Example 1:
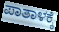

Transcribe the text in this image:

ಪಾತಾಳಕ್ಕೆ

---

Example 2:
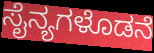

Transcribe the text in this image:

ಸೈನ್ಯಗಳೊಡನೆ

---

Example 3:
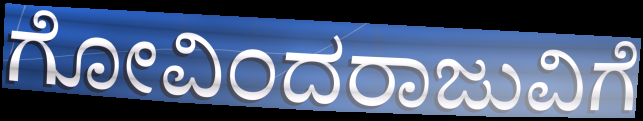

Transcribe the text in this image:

ಗೋವಿಂದರಾಜುವಿಗೆ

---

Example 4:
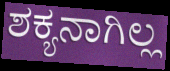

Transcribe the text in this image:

ಶಕ್ಯನಾಗಿಲ್ಲ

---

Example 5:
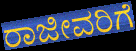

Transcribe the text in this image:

ರಾಜೀವರಿಗೆ